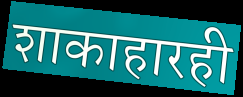
शाकाहारही